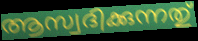
ആസ്വദിക്കുന്നതു്